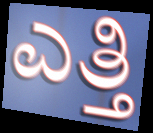
ಎತ್ತಿ